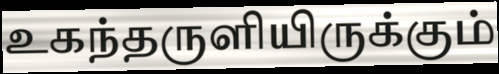
உகந்தருளியிருக்கும்